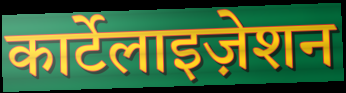
कार्टेलाइज़ेशन